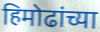
हिमोढांच्या